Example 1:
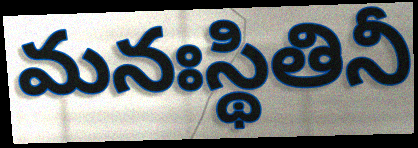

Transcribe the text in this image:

మనఃస్థితినీ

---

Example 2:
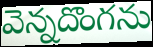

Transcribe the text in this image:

వెన్నదొంగను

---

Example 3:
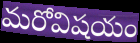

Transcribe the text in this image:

మరోవిషయం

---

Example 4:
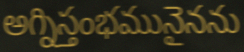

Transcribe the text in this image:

అగ్నిస్తంభమునైనను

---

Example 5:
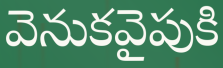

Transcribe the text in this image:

వెనుకవైపుకి